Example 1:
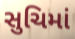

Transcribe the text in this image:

સુચિમાં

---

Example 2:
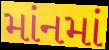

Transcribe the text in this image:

માંનમાં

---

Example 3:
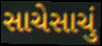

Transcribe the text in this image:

સાચેસાચું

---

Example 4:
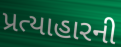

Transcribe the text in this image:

પ્રત્યાહારની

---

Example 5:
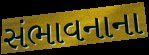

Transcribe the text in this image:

સંભાવનાના